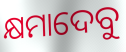
କ୍ଷମାଦେବୁ